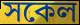
সকেল